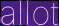
allot